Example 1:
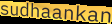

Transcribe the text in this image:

sudhaankan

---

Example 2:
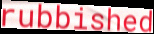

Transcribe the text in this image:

rubbished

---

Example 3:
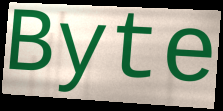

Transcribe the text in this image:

Byte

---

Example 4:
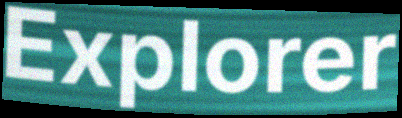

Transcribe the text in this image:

Explorer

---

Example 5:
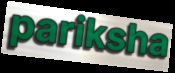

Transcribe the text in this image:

pariksha